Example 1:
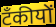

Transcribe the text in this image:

टँकीयों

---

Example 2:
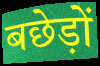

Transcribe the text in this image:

बछेड़ों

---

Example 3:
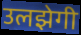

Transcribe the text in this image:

उलझेगी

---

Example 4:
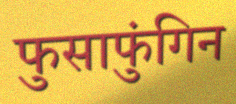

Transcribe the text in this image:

फुसाफुंगिन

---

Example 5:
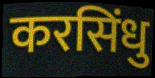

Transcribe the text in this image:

करसिंधु